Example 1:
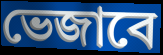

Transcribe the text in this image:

ভেজাবে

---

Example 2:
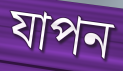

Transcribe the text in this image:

যাপন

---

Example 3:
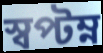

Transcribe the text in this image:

স্বপ্টম্ন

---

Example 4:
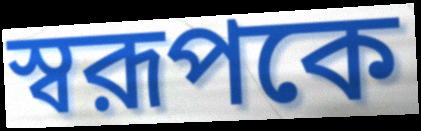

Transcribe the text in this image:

স্বরূপকে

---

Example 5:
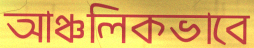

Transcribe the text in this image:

আঞ্চলিকভাবে